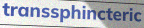
transsphincteric